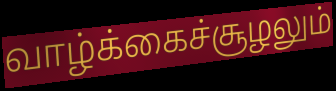
வாழ்க்கைச்சூழலும்